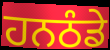
ਹਨਠੰਡੇ